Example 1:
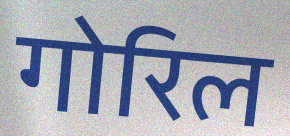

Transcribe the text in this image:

गोरिल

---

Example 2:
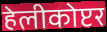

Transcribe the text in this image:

हेलीकोप्टर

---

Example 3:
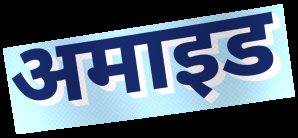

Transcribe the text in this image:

अमाइड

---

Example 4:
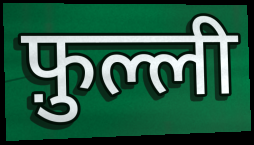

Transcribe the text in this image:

फ़ुल्ली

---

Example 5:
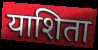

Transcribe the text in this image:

याशिता